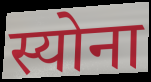
स्योना